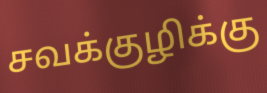
சவக்குழிக்கு